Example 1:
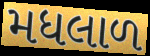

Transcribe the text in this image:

મધલાળ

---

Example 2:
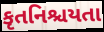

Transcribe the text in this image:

કૃતનિશ્ચયતા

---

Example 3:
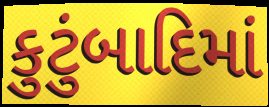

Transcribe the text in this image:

કુટુંબાદિમાં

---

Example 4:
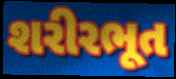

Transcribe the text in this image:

શરીરભૂત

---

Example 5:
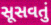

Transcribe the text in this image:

સૂસવતું